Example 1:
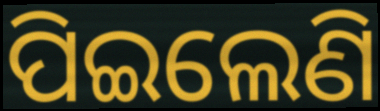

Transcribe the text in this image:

ପିଇଲେଣି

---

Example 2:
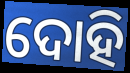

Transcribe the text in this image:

ଦୋହି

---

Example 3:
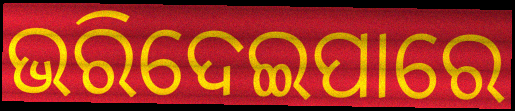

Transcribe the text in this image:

ଭରିଦେଇପାରେ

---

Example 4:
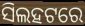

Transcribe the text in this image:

ସିଲହଟରେ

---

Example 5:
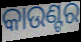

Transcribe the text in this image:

କାଉଣ୍ଟର